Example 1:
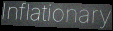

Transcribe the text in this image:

Inflationary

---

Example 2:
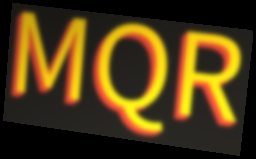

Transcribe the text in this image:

MQR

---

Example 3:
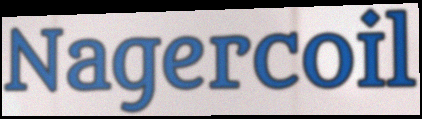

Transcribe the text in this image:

Nagercoil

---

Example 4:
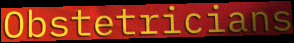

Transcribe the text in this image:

Obstetricians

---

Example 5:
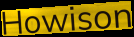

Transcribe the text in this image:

Howison